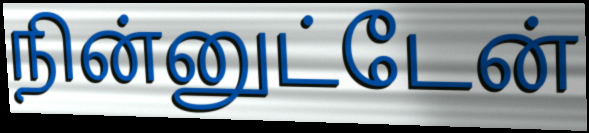
நின்னுட்டேன்